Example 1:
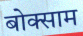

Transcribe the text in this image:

बोक्साम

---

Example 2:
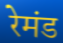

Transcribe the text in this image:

रेमंड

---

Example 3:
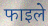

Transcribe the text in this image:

फाइले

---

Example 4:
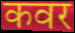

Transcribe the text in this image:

कवर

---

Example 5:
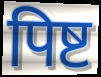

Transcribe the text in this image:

पिष्ट